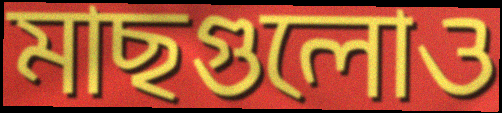
মাছগুলোও